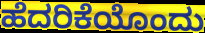
ಹೆದರಿಕೆಯೊಂದು